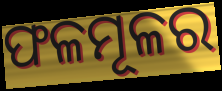
ଫଳମୂଳର